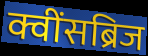
क्वींसब्रिज